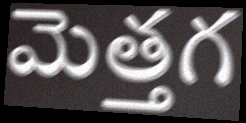
మెత్తగ